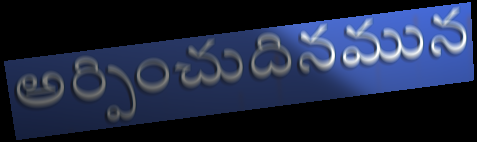
అర్పించుదినమున